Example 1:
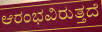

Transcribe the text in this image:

ಆರಂಭವಿರುತ್ತದೆ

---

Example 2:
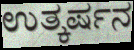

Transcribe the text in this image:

ಉತ್ಕರ್ಷನ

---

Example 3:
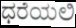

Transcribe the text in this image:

ಧರೆಯಲಿ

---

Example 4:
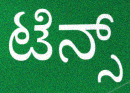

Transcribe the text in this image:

ಟೆನ್ಸ್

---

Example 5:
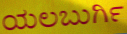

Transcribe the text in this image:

ಯಲಬುರ್ಗಿ